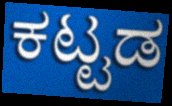
ಕಟ್ಟಡ